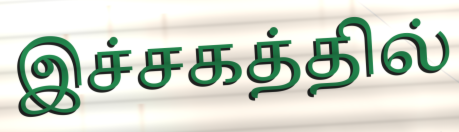
இச்சகத்தில்